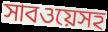
সাবওয়েসহ